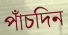
পাঁচদিন